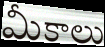
మీకాలు